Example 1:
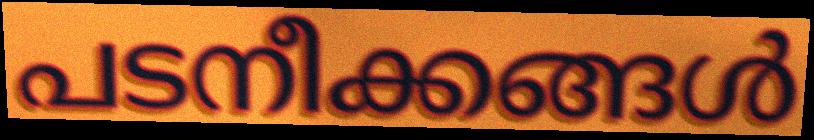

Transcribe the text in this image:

പടനീക്കങ്ങൾ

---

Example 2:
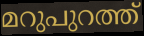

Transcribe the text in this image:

മറുപുറത്ത്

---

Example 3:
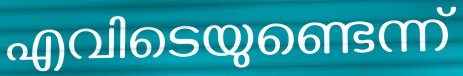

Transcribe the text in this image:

എവിടെയുണ്ടെന്ന്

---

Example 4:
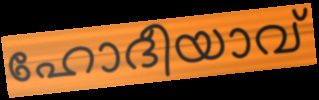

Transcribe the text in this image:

ഹോദീയാവ്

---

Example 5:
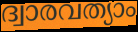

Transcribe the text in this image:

ദ്വാരവത്യാം